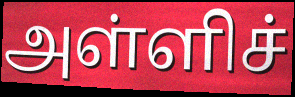
அள்ளிச்